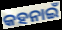
କହନାଇଁ